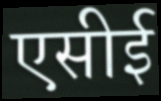
एसीई